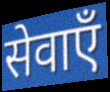
सेवाएँ